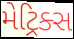
મેટ્રિક્સ